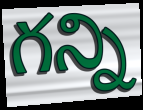
గన్ని